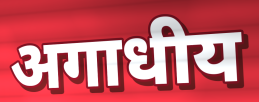
अगाधीय